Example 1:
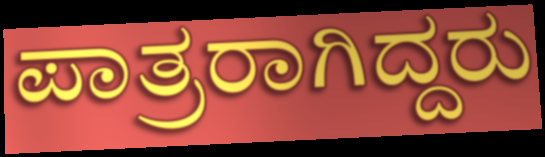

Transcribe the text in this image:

ಪಾತ್ರರಾಗಿದ್ದರು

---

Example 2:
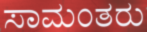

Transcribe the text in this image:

ಸಾಮಂತರು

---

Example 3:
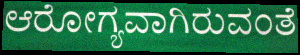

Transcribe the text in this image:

ಆರೋಗ್ಯವಾಗಿರುವಂತೆ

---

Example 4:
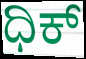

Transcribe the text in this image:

ಧಿಕ್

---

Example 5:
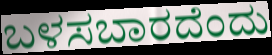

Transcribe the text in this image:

ಬಳಸಬಾರದೆಂದು